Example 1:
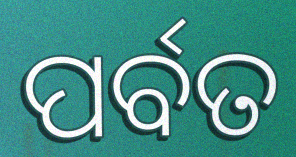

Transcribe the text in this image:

ପର୍ବତ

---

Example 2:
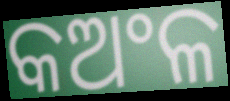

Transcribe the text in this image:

କଅଂଳ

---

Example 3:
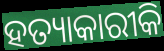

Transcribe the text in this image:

ହତ୍ୟାକାରୀକି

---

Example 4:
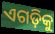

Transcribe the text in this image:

ଏଗଡ଼ିକୁ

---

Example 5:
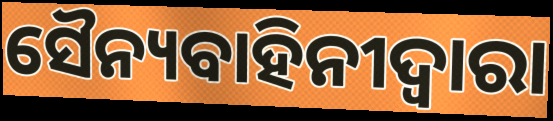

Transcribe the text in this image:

ସୈନ୍ୟବାହିନୀଦ୍ୱାରା